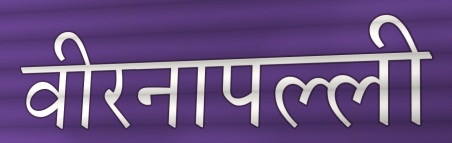
वीरनापल्ली